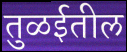
तुळईतील